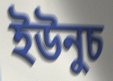
ইউনুচ